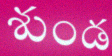
శుండ